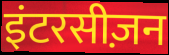
इंटरसीज़न